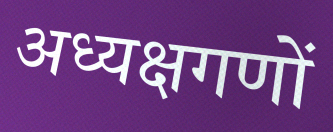
अध्यक्षगणों